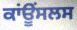
ਕਾਂਊਂਸਲਸ